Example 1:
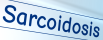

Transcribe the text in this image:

Sarcoidosis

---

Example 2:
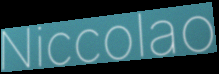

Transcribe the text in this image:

Niccolao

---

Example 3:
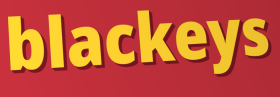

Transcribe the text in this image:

blackeys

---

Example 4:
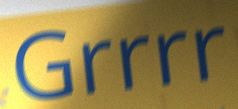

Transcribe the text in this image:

Grrrr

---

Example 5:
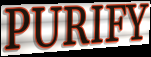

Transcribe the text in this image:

PURIFY